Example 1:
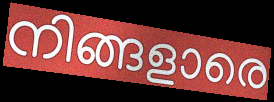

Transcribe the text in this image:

നിങ്ങളാരെ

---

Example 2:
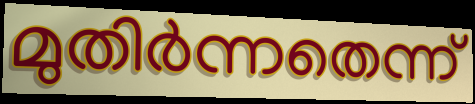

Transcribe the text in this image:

മുതിർന്നതെന്ന്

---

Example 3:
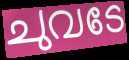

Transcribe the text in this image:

ചുവടേ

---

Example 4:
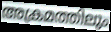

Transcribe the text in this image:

അക്രമത്തിലും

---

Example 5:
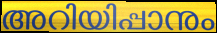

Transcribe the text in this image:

അറിയിപ്പാനും